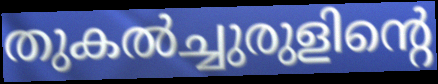
തുകൽച്ചുരുളിന്റെ